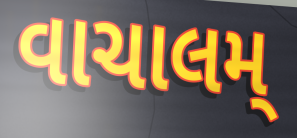
વાચાલમ્